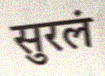
सुरलं